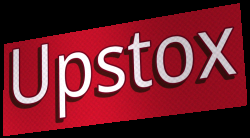
Upstox